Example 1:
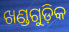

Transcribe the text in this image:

ଖଣ୍ଡଗୁଡ଼ିକ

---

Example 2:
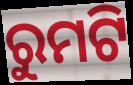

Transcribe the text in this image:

ରୁମଟି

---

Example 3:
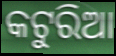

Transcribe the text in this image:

କଟୁରିଆ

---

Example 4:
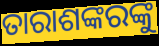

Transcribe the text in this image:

ତାରାଶଙ୍କରଙ୍କୁ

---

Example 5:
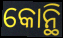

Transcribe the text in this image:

କୋନ୍ଥି